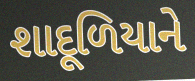
શાદૂળિયાને